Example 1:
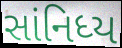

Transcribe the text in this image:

સાંનિધ્ય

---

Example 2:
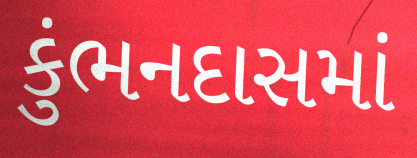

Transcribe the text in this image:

કુંભનદાસમાં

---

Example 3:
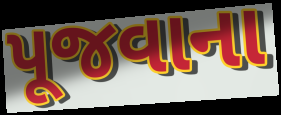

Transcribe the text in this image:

પૂજવાના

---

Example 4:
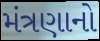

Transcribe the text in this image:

મંત્રણાનો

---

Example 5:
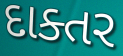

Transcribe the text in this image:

દાક્તર